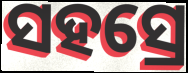
ସହସ୍ରେ